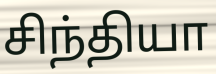
சிந்தியா